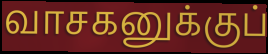
வாசகனுக்குப்